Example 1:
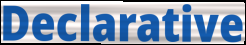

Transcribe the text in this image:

Declarative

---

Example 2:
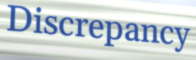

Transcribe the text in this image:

Discrepancy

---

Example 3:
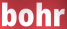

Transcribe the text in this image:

bohr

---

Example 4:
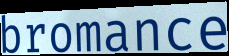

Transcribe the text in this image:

bromance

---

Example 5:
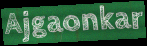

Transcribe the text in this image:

Ajgaonkar